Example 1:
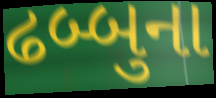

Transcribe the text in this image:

ઢબ્બુના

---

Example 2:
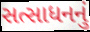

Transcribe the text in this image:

સત્સાધનનું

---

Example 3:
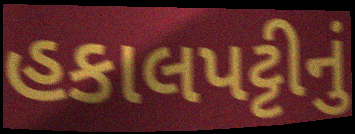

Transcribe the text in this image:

હકાલપટ્ટીનું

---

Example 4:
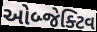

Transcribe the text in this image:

ઓબ્જેક્ટિવ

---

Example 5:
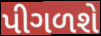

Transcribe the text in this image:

પીગળશે